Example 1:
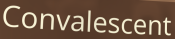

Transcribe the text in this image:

Convalescent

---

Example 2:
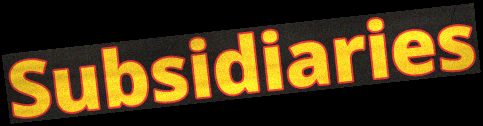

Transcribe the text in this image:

Subsidiaries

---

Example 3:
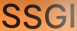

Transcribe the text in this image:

SSGI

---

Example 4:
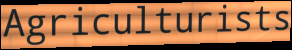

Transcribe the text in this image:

Agriculturists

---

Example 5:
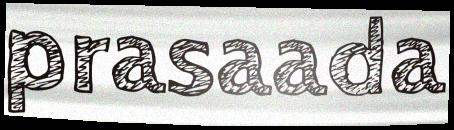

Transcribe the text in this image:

prasaada